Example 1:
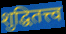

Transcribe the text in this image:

शुद्धितत्त्व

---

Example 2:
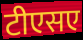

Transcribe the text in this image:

टीएसए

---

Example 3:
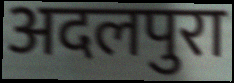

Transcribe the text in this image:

अदलपुरा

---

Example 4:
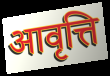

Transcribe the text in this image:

आवृत्ति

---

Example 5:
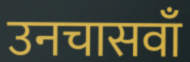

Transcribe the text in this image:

उनचासवाँ